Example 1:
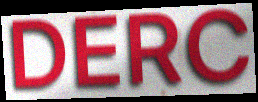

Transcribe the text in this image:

DERC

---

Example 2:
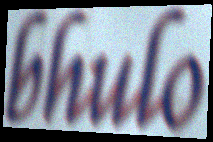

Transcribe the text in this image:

bhulo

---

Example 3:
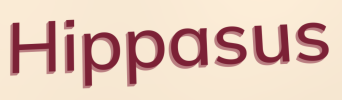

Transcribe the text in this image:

Hippasus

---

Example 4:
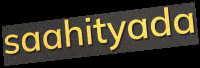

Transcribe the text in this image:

saahityada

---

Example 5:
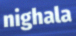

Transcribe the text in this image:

nighala